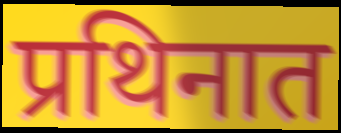
प्रथिनात